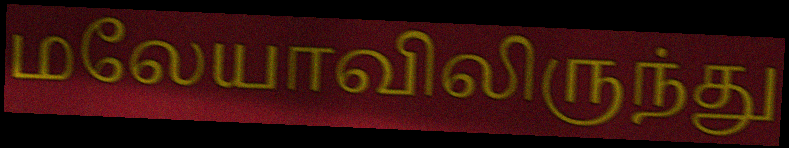
மலேயாவிலிருந்து